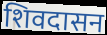
शिवदासन